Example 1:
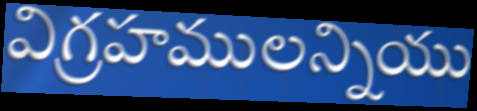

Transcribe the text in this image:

విగ్రహములన్నియు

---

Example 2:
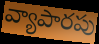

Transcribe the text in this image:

వ్యాపారపు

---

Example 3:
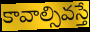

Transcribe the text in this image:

కావాల్సివస్తే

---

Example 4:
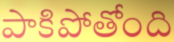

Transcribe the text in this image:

పాకిపోతోంది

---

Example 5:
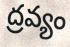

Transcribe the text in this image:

ద్రవ్యం